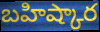
బహిష్కార